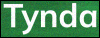
Tynda